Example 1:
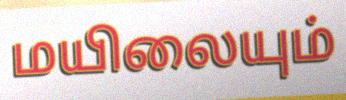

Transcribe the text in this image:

மயிலையும்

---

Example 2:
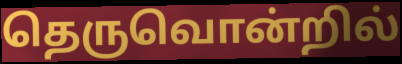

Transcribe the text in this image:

தெருவொன்றில்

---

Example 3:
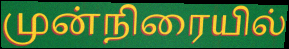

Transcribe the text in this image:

முன்நிரையில்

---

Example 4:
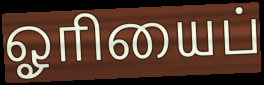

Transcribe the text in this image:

ஓரியைப்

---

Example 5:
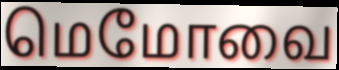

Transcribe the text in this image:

மெமோவை